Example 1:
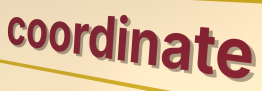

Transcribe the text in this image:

coordinate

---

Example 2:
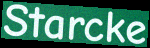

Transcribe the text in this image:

Starcke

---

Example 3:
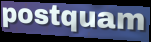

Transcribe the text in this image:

postquam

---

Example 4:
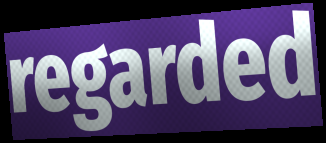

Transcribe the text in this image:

regarded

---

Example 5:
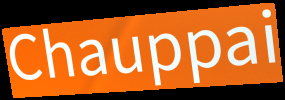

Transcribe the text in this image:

Chauppai